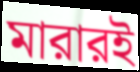
মারারই